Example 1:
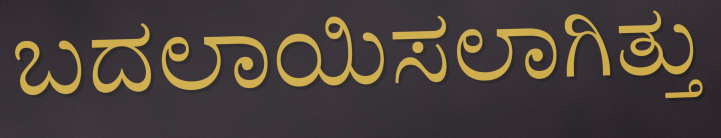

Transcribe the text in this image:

ಬದಲಾಯಿಸಲಾಗಿತ್ತು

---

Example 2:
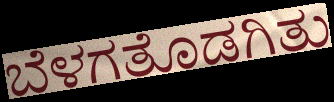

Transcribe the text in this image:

ಬೆಳಗತೊಡಗಿತು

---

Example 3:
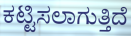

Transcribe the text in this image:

ಕಟ್ಟಿಸಲಾಗುತ್ತಿದೆ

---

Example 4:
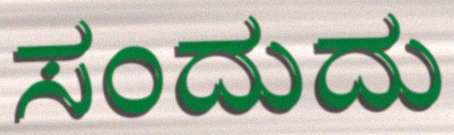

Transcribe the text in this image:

ಸಂದುದು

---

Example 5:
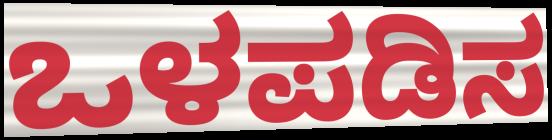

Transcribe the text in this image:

ಒಳಪಡಿಸ